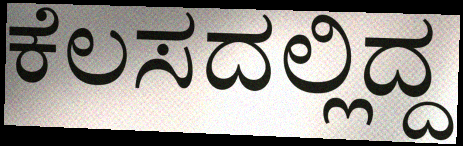
ಕೆಲಸದಲ್ಲಿದ್ದ